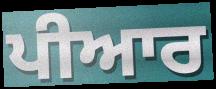
ਪੀਆਰ